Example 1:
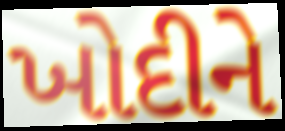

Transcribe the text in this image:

ખોદીને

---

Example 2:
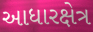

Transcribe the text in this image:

આધારક્ષેત્ર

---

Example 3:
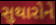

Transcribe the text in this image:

સુથારોને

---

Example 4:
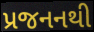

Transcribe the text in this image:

પ્રજનનથી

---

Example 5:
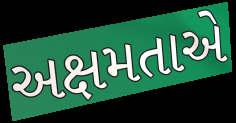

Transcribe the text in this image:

અક્ષમતાએ